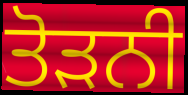
ਤੋੜਨੀ